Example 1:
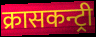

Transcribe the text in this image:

क्रासकन्ट्री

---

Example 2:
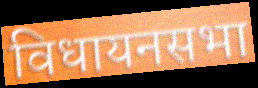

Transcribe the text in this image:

विधायनसभा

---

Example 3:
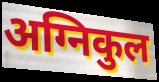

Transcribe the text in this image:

अग्निकुल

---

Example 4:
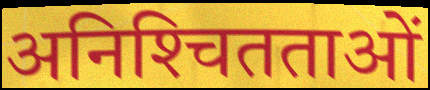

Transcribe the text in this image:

अनिश्‍चितताओं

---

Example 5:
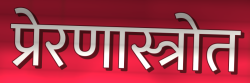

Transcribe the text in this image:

प्रेरणास्त्रोत